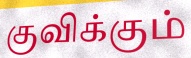
குவிக்கும்